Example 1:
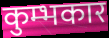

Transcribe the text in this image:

कुम्भकार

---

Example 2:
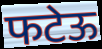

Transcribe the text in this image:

फटेऊ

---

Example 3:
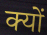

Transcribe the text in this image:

क्यों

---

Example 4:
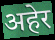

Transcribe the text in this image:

अहेर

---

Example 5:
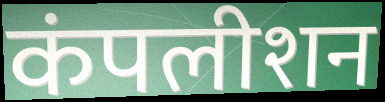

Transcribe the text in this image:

कंपलीशन